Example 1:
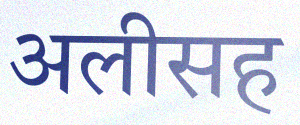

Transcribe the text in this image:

अलीसह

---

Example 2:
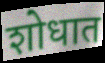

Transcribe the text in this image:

शोधात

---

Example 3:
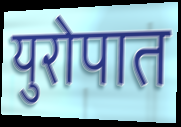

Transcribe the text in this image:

युरोपात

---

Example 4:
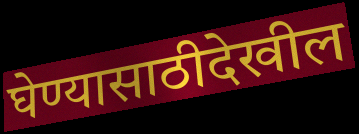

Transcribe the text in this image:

घेण्यासाठीदेखील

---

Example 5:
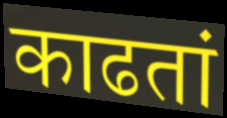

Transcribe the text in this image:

काढतां